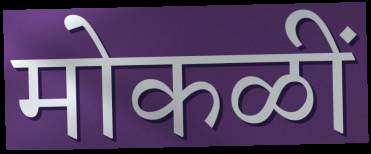
मोकळीं